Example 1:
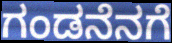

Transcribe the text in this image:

ಗಂಡನೆನಗೆ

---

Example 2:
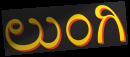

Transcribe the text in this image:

ಲುಂಗಿ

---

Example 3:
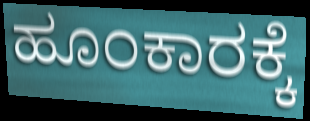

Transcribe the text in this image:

ಹೂಂಕಾರಕ್ಕೆ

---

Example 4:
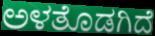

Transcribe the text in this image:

ಅಳತೊಡಗಿದೆ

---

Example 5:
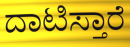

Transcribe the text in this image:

ದಾಟಿಸ್ತಾರೆ